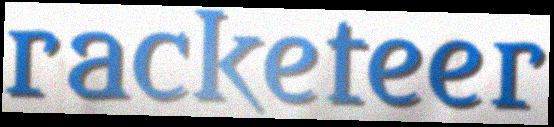
racketeer